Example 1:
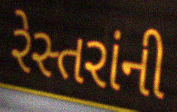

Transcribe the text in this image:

રેસ્તરાંની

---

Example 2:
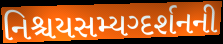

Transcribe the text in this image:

નિશ્ચયસમ્યગ્દર્શનની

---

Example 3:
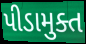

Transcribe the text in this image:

પીડામુક્ત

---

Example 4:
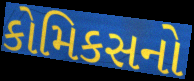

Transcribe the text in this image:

કોમિકસનો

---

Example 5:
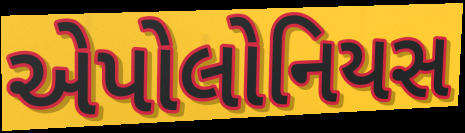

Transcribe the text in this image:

એપોલોનિયસ